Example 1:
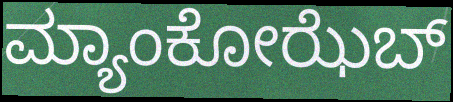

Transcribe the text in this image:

ಮ್ಯಾಂಕೋಝೆಬ್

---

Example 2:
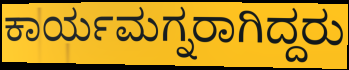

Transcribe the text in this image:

ಕಾರ್ಯಮಗ್ನರಾಗಿದ್ದರು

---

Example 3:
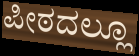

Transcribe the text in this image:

ಪೀಠದಲ್ಲೂ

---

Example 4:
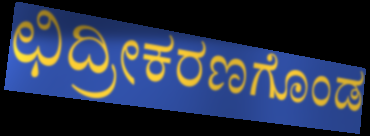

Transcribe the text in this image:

ಛಿದ್ರೀಕರಣಗೊಂಡ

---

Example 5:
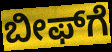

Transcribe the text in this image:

ಬೀಫ್‌ಗೆ